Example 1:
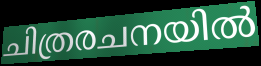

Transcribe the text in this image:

ചിത്രരചനയിൽ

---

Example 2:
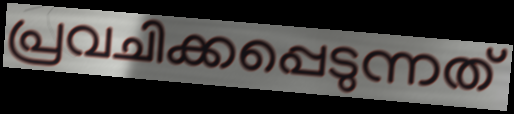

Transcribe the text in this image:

പ്രവചിക്കപ്പെടുന്നത്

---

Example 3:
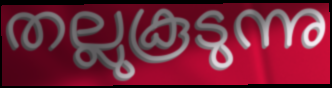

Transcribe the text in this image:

തല്ലുകൂടുന്നു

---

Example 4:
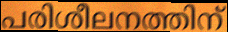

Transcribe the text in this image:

പരിശീലനത്തിന്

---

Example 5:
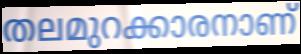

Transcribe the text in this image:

തലമുറക്കാരനാണ്